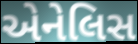
એનેલિસ